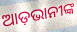
ଆଡ଼ଭାନୀଙ୍କ